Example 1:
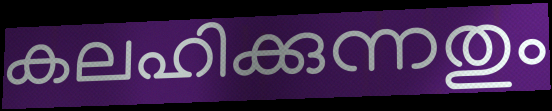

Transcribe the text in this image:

കലഹിക്കുന്നതും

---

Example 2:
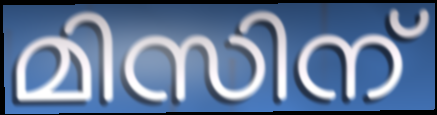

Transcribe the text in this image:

മിസിന്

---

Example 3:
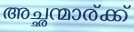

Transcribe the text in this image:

അച്ഛന്മാര്ക്ക്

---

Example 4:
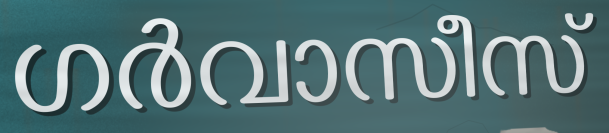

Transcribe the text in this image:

ഗർവാസീസ്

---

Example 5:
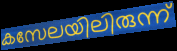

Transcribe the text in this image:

കസേലയിലിരുന്ന്